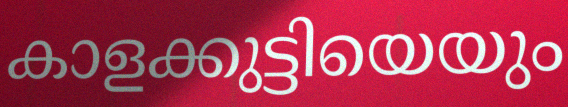
കാളക്കുട്ടിയെയും